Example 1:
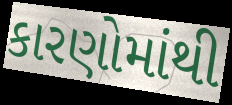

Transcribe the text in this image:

કારણોમાંથી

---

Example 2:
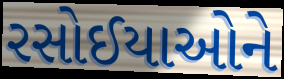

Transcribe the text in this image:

રસોઈયાઓને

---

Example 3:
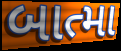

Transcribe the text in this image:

બાત્મા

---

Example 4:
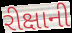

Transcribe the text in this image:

રીક્ષાની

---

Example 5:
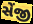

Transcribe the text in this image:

સેંજી